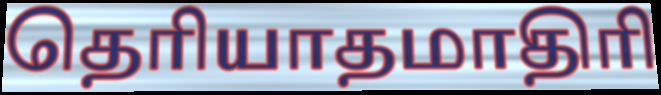
தெரியாதமாதிரி